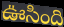
ఊసింది